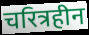
चरित्रहीन